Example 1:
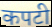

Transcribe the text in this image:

कपटी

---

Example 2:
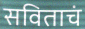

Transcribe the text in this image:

सविताचं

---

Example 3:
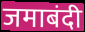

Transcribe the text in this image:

जमाबंदी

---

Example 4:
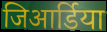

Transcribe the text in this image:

जिआर्डिया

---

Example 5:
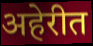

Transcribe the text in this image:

अहेरीत